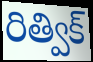
రిత్విక్